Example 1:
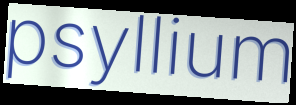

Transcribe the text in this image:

psyllium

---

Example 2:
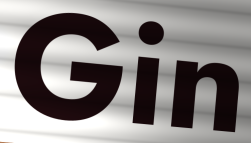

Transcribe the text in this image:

Gin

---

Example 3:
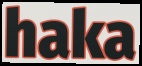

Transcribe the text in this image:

haka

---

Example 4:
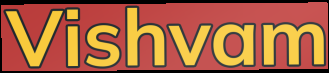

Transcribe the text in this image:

Vishvam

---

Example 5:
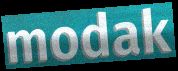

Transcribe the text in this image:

modak